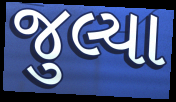
જુલ્યા